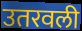
उतरवली